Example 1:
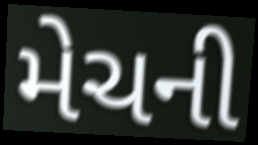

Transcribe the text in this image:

મેચની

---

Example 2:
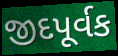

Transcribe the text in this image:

જીદપૂર્વક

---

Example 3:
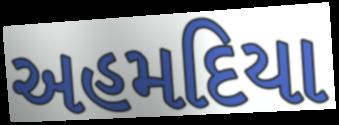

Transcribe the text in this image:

અહમદિયા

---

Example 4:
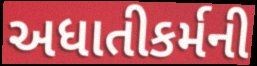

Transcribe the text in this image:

અધાતીકર્મની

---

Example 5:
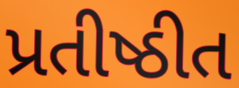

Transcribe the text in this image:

પ્રતીષ્ઠીત